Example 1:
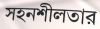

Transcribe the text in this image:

সহনশীলতার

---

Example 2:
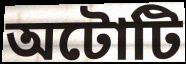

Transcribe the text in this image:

অটোটি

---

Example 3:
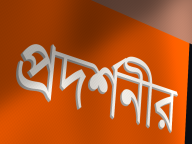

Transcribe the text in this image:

প্রদর্শনীর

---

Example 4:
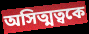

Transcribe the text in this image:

অসিত্মত্বকে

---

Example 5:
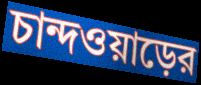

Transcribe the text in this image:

চান্দওয়াড়ের